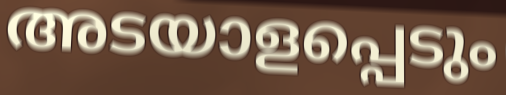
അടയാളപ്പെടും